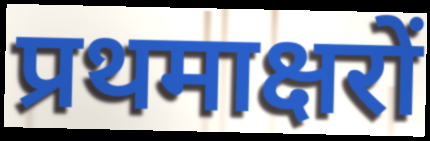
प्रथमाक्षरों